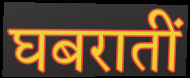
घबरातीं